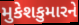
મુકેશકુમારને